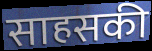
साहसकी